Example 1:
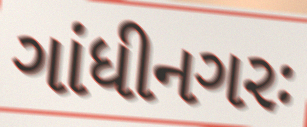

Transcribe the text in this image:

ગાંધીનગરઃ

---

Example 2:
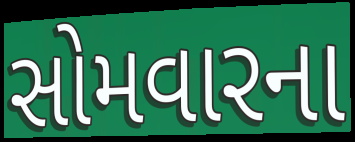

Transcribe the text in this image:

સોમવારના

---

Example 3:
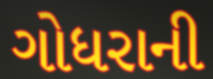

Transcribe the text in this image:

ગોધરાની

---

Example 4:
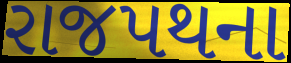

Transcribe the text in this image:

રાજપથના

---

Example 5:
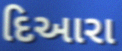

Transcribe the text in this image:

દિઆરા